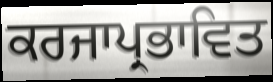
ਕਰਜਾਪ੍ਰਭਾਵਿਤ